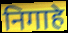
निगाहे